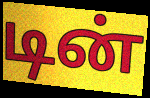
டின்